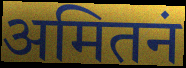
अमितनं